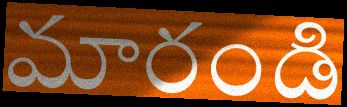
మారండి